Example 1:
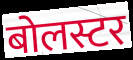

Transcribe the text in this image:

बोलस्टर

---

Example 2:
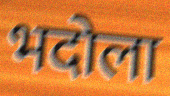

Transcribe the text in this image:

भदोला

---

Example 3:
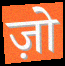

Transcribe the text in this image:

ज़ो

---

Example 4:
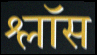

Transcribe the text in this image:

श्लॉस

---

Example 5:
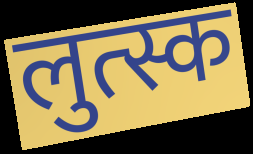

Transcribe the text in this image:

लुत्स्क